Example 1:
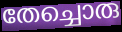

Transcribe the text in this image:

തേച്ചൊരു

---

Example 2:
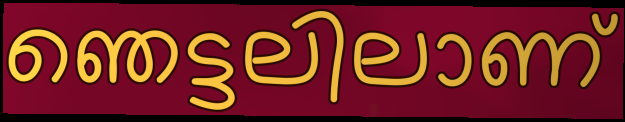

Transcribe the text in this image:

ഞെട്ടലിലാണ്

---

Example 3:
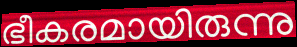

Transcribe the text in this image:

ഭീകരമായിരുന്നു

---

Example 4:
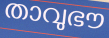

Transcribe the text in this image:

താവുഭൗ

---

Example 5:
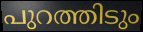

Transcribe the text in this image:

പുറത്തിടും